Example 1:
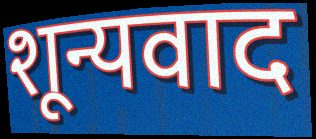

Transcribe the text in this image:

शून्यवाद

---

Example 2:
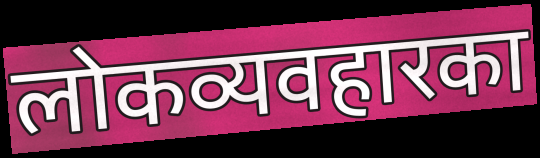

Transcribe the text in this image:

लोकव्यवहारका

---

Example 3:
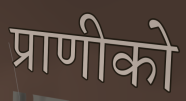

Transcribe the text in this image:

प्राणीको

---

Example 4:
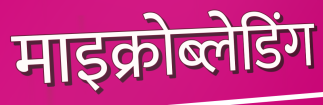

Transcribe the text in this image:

माइक्रोब्लेडिंग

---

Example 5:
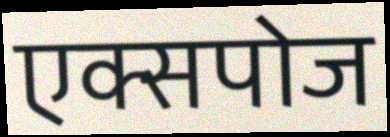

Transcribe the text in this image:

एक्सपोज